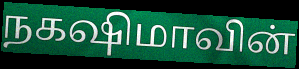
நகஷிமாவின்